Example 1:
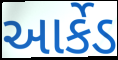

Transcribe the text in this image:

આર્કેડ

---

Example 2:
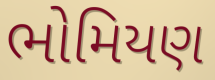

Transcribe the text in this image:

ભોમિયણ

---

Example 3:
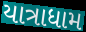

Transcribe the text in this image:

યાત્રાધામ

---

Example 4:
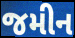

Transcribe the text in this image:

જમીન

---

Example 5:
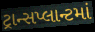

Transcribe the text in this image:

ટ્રાન્સપ્લાન્ટમાં